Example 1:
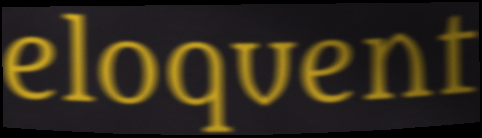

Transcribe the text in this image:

eloquent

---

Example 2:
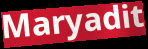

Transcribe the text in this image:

Maryadit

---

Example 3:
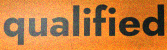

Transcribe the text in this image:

qualified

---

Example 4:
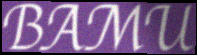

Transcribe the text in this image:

BAMU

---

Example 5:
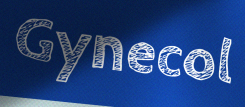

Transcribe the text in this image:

Gynecol